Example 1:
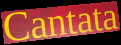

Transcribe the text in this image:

Cantata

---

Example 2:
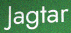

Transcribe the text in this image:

Jagtar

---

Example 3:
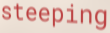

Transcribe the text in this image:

steeping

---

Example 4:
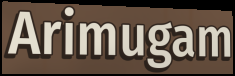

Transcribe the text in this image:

Arimugam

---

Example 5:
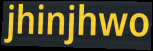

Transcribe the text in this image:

jhinjhwo